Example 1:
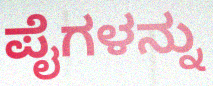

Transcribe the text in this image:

ಪೈಗಳನ್ನು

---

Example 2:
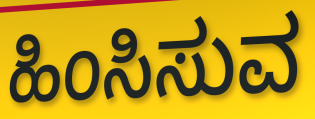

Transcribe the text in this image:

ಹಿಂಸಿಸುವ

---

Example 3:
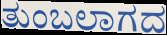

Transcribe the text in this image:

ತುಂಬಲಾಗದ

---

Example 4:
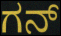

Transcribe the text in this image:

ಗನ್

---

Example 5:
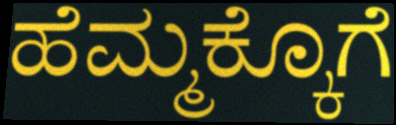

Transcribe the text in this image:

ಹೆಮ್ಮಕ್ಕೊಗೆ